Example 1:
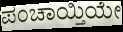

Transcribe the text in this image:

ಪಂಚಾಯ್ತಿಯೇ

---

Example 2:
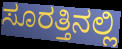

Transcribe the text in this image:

ಸೂರತ್ತಿನಲ್ಲಿ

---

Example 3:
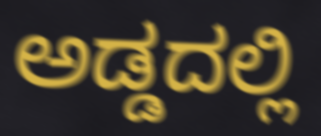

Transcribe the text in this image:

ಅಡ್ಡದಲ್ಲಿ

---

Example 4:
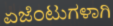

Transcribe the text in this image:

ಏಜೆಂಟುಗಳಾಗಿ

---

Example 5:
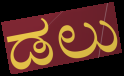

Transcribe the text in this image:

ಡಲು